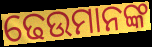
ଢେଉମାନଙ୍କ